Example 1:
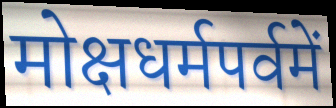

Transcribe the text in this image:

मोक्षधर्मपर्वमें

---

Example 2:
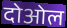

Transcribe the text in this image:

दोओल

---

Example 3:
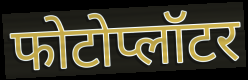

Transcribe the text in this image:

फोटोप्लॉटर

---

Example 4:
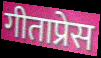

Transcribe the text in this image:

गीताप्रेस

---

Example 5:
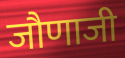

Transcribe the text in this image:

जौणाजी